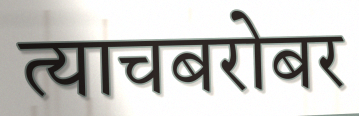
त्‍याचबरोबर